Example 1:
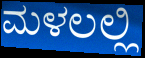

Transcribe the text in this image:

ಮಳಲಲ್ಲಿ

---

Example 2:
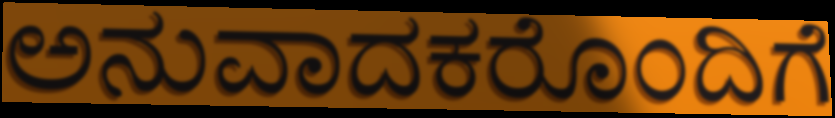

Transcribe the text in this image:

ಅನುವಾದಕರೊಂದಿಗೆ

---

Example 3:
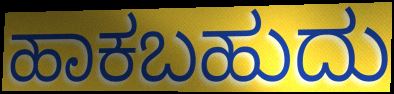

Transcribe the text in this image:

ಹಾಕಬಹುದು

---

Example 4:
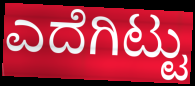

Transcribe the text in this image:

ಎದೆಗಿಟ್ಟು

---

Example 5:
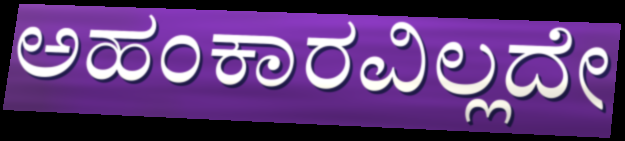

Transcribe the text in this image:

ಅಹಂಕಾರವಿಲ್ಲದೇ